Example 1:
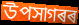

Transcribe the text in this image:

উপসাগৰৰ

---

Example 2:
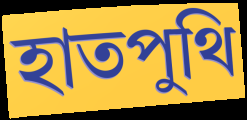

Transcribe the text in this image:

হাতপুথি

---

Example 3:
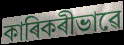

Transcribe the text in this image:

কাৰিকৰীভাৱে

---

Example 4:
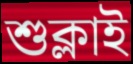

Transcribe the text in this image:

শুক্লাই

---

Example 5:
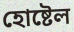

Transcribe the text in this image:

হোষ্টেল